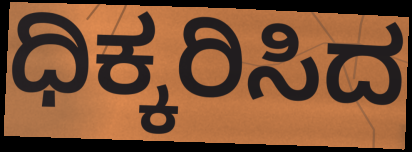
ಧಿಕ್ಕರಿಸಿದ